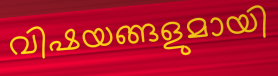
വിഷയങ്ങളുമായി